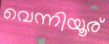
വെന്നിയൂര്